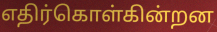
எதிர்கொள்கின்றன